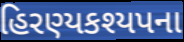
હિરણ્યકશ્યપના